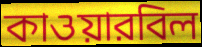
কাওয়ারবিল